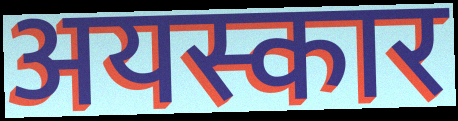
अयस्कार